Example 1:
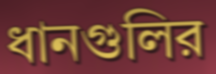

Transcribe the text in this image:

ধানগুলির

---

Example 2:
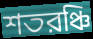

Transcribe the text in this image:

শতরঞ্চি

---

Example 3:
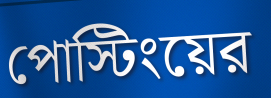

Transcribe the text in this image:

পোস্টিংয়ের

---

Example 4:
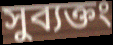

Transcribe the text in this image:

সুব্যক্তং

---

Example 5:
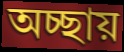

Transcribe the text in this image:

অচ্ছায়